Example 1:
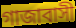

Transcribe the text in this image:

গাজাবাসী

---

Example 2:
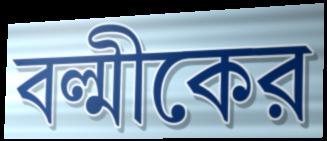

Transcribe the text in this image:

বল্মীকের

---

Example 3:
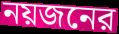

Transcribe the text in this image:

নয়জনের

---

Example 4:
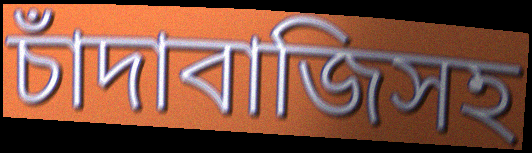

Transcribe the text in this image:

চাঁদাবাজিসহ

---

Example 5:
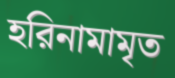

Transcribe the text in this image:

হরিনামামৃত